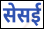
सेसई